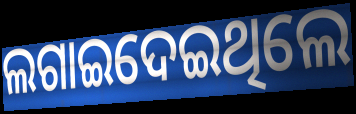
ଲଗାଇଦେଇଥିଲେ